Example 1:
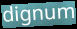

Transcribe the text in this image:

dignum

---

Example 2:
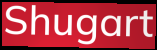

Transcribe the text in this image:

Shugart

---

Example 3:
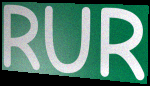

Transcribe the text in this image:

RUR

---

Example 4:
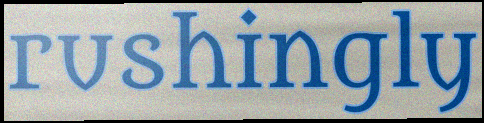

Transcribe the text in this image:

rushingly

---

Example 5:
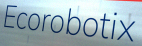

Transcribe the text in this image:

Ecorobotix